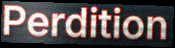
Perdition